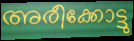
അരീക്കോട്ടു